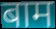
बाम